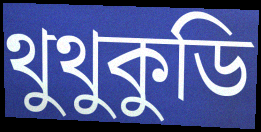
থুথুকুডি